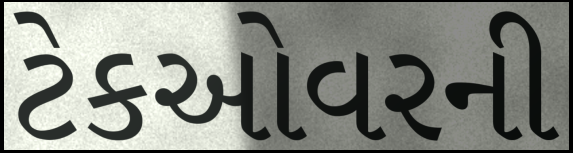
ટેકઓવરની